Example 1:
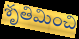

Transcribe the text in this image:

శృతిమించి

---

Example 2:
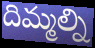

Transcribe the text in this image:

దిమ్మల్ని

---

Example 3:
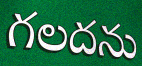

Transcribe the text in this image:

గలదను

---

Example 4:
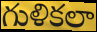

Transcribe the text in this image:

గుళికలా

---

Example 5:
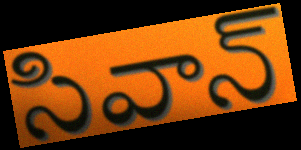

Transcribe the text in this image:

సివాన్